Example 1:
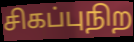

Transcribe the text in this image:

சிகப்புநிற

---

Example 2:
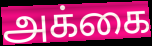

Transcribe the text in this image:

அக்கை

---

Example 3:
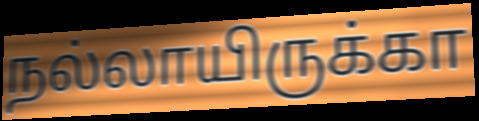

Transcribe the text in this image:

நல்லாயிருக்கா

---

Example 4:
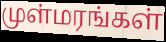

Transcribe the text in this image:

முள்மரங்கள்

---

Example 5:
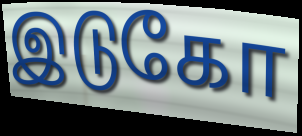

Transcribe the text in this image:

இடுகோ